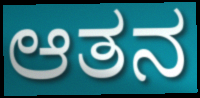
ಆತನ